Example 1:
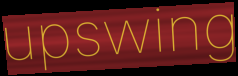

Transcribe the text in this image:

upswing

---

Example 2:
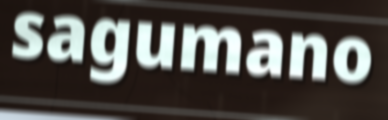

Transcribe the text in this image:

sagumano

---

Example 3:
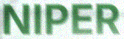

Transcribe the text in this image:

NIPER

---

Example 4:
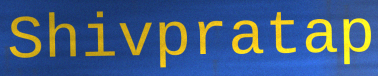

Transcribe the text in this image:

Shivpratap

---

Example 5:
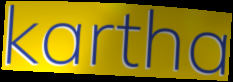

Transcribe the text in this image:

kartha